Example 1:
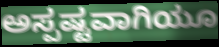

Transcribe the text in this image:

ಅಸ್ಪಷ್ಟವಾಗಿಯೂ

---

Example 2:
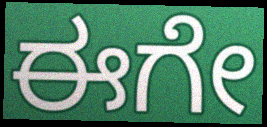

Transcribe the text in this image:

ಈಗೇ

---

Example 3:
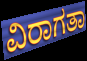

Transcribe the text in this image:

ವಿರಾಗತಾ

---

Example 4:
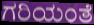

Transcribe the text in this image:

ಗರಿಯಂತೆ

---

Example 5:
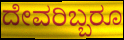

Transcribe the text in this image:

ದೇವರಿಬ್ಬರೂ